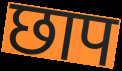
छाप